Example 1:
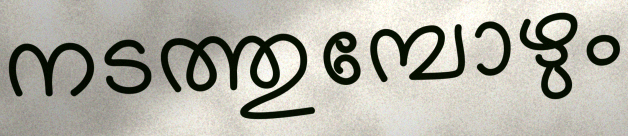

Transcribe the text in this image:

നടത്തുമ്പോഴും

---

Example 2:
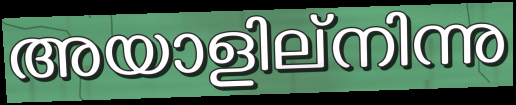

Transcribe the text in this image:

അയാളില്നിന്നു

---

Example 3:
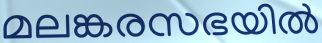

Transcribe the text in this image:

മലങ്കരസഭയിൽ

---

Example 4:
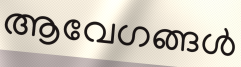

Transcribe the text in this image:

ആവേഗങ്ങൾ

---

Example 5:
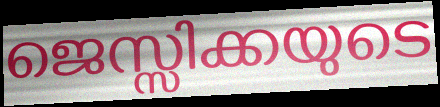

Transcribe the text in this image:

ജെസ്സിക്കയുടെ